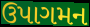
ઉપાગમન